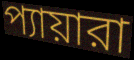
প্যায়ারা